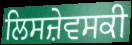
ਲਿਸਜ਼ੇਵਸਕੀ